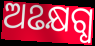
ଅଌକ୍ଷଗ୍ଧ